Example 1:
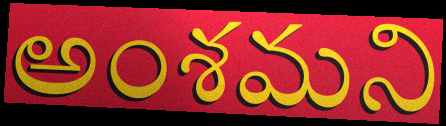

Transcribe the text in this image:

అంశమని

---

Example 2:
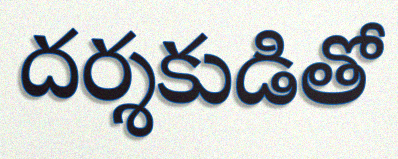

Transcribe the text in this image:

దర్శకుడితో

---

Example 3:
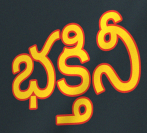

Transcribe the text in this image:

భక్తినీ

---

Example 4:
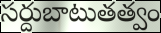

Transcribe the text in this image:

సర్దుబాటుతత్వం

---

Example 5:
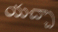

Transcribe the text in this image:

యచ్చా